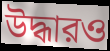
উদ্ধারও